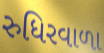
રુધિરવાળા